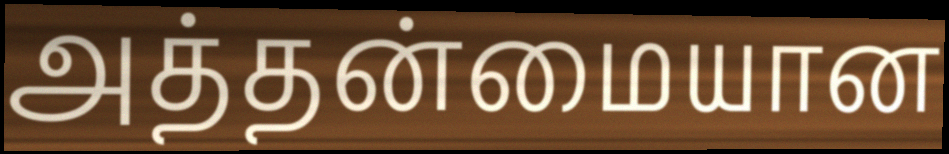
அத்தன்மையான